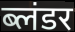
ब्लंडर